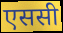
एससी